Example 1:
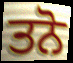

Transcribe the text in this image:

ਤਨੋ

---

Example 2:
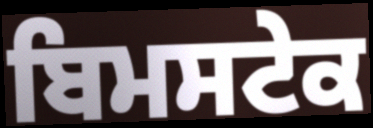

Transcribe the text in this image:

ਬਿਮਸਟੇਕ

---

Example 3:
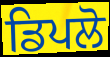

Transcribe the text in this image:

ਡਿਪਲੋ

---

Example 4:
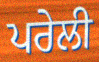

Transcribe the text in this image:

ਪਰੇਲੀ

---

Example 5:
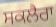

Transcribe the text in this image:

ਸਕਲੈਰਾ